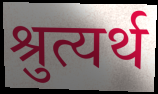
श्रुत्यर्थ